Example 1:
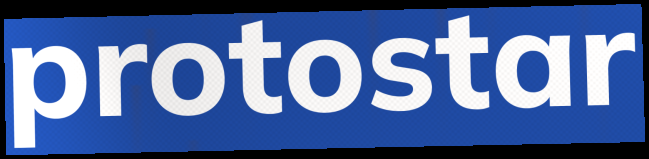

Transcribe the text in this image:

protostar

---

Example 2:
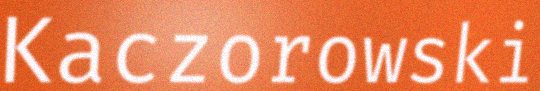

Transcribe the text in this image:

Kaczorowski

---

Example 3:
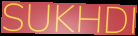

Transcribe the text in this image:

SUKHDI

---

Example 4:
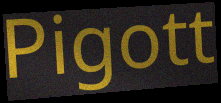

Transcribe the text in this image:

Pigott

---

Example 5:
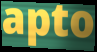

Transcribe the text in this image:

apto